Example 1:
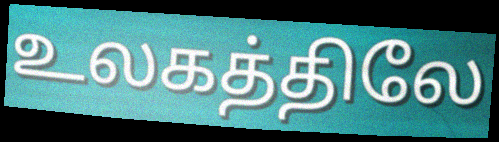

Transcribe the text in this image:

உலகத்திலே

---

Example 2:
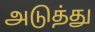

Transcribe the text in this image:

அடுத்து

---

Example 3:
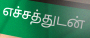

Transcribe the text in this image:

எச்சத்துடன்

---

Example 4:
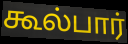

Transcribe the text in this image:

கூல்பார்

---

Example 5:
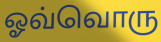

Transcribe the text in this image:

ஓவ்வொரு